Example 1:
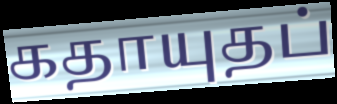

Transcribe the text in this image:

கதாயுதப்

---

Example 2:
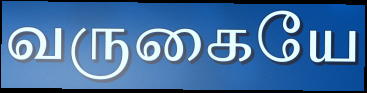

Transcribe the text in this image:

வருகையே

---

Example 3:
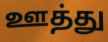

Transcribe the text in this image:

ஊத்து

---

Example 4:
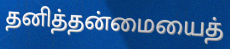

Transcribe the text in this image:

தனித்தன்மையைத்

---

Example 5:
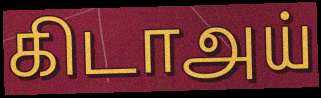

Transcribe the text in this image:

கிடாஅய்